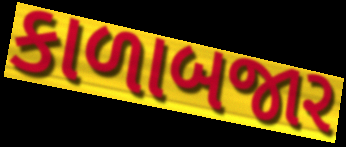
કાળાબજાર